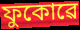
ফুকোৱে